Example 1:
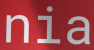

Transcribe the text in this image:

nia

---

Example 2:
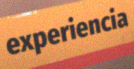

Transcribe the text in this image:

experiencia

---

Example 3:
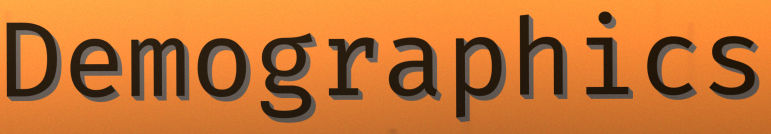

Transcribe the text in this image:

Demographics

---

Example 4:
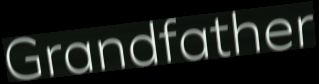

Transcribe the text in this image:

Grandfather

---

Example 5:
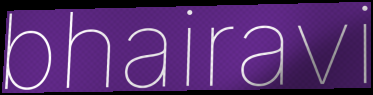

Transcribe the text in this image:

bhairavi